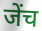
जेंच